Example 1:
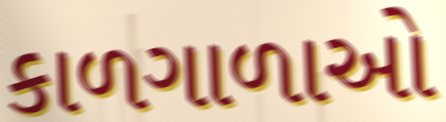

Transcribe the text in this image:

કાળગાળાઓ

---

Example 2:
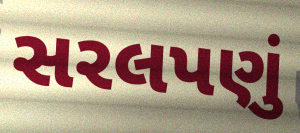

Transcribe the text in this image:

સરલપણું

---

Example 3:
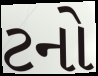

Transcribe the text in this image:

ટનો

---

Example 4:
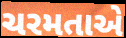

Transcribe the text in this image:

ચરમતાએ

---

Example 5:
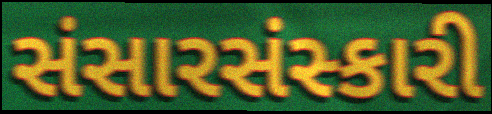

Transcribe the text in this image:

સંસારસંસ્કારી